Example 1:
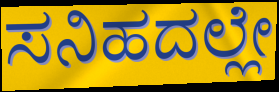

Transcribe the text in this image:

ಸನಿಹದಲ್ಲೇ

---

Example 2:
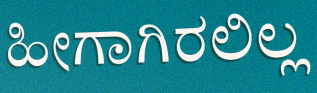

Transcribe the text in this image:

ಹೀಗಾಗಿರಲಿಲ್ಲ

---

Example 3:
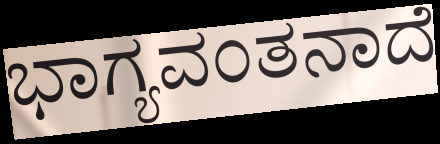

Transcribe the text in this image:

ಭಾಗ್ಯವಂತನಾದೆ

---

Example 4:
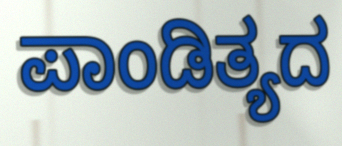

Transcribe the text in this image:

ಪಾಂಡಿತ್ಯದ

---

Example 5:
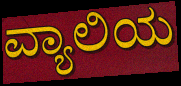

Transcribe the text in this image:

ವ್ಯಾಲಿಯ